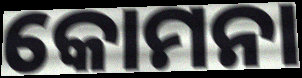
କୋମନା